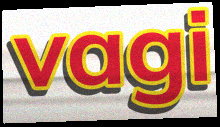
vagi